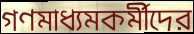
গণমাধ্যমকর্মীদের